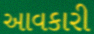
આવકારી